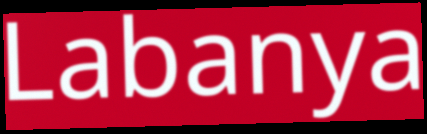
Labanya